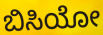
ಬಿಸಿಯೋ